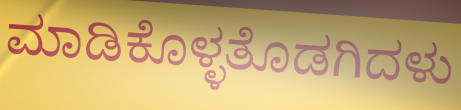
ಮಾಡಿಕೊಳ್ಳತೊಡಗಿದಳು